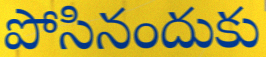
పోసినందుకు